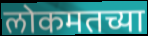
लोकमतच्या